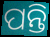
ପନ୍ତି